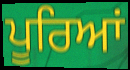
ਪੂਰਿਆਂ